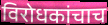
विरोधकांचाच